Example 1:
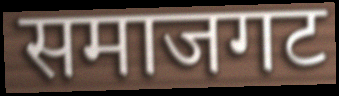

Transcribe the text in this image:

समाजगट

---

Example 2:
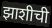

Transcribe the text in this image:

झाशीची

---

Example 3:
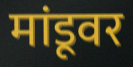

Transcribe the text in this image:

मांडूवर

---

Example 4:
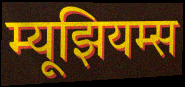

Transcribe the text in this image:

म्यूझियम्स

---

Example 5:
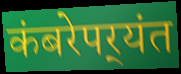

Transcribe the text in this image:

कंबरेपर्यंत